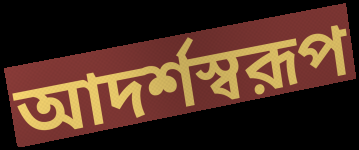
আদর্শস্বরূপ